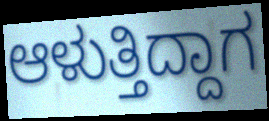
ಆಳುತ್ತಿದ್ದಾಗ